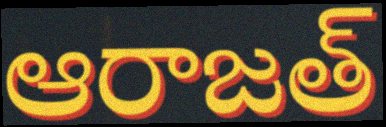
ఆరాజత్